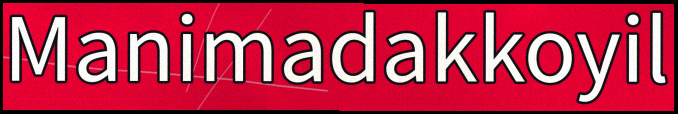
Manimadakkoyil